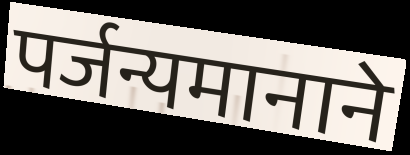
पर्जन्यमानाने